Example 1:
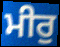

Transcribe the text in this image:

ਮੀਰੁ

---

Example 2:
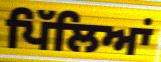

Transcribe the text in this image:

ਪਿੱਲਿਆਂ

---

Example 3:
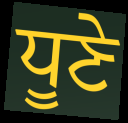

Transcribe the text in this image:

ਧੂਣੇ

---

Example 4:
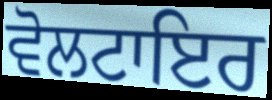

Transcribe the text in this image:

ਵੋਲਟਾਇਰ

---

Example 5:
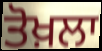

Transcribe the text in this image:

ਤੋਖ਼ਲਾ